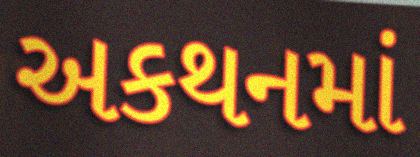
અકથનમાં